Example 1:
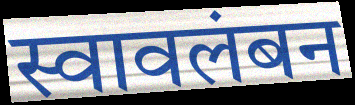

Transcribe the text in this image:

स्वावलंबन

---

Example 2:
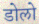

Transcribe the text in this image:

डोलो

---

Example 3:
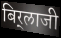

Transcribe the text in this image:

बिर्लाजी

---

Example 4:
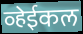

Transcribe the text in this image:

व्हेईकल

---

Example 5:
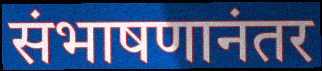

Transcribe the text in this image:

संभाषणानंतर